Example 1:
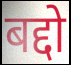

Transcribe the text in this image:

बद्दो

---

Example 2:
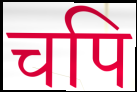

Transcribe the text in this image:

चपि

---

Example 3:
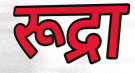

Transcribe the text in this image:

रूद्रा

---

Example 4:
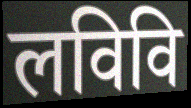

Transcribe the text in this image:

लविवि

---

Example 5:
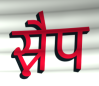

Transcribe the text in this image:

स्नैप